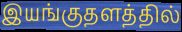
இயங்குதளத்தில்